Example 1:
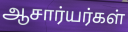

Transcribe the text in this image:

ஆசார்யர்கள்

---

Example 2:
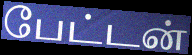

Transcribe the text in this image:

பேட்டன்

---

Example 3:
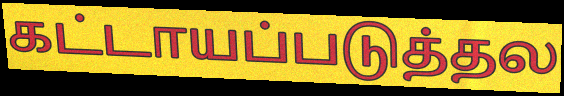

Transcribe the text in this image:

கட்டாயப்படுத்தல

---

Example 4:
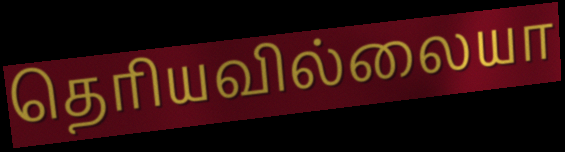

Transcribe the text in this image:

தெரியவில்லையா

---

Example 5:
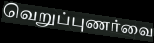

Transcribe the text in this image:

வெறுப்புணர்வை